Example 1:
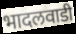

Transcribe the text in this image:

भादलवाडी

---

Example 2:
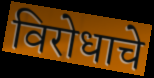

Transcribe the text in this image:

विरोधाचे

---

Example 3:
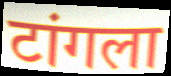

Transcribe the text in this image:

टांगला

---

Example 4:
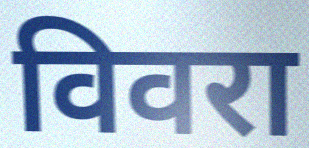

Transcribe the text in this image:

विवरा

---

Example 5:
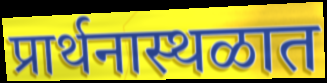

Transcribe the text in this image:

प्रार्थनास्थळात